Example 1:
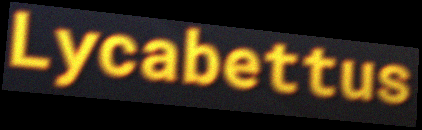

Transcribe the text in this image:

Lycabettus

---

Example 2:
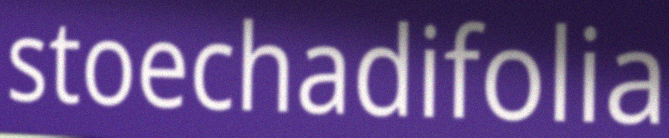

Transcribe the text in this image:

stoechadifolia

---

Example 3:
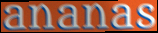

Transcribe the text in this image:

ananas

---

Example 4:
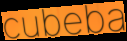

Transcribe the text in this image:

cubeba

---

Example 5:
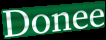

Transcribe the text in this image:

Donee